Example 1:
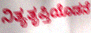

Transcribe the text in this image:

ನಿತ್ಯತೃಪ್ತಿಯೊಡನೆ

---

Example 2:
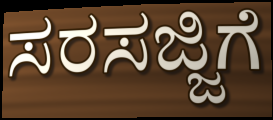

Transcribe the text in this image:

ಸರಸಜ್ಜಿಗೆ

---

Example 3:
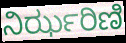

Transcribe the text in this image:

ನಿರ್ಝರಿಣಿ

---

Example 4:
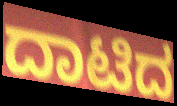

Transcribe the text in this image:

ದಾಟಿದ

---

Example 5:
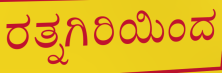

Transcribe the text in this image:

ರತ್ನಗಿರಿಯಿಂದ